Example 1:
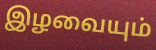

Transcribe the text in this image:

இழவையும்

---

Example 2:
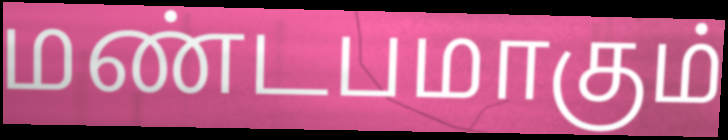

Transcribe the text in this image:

மண்டபமாகும்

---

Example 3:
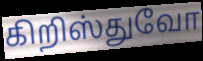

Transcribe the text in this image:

கிறிஸ்துவோ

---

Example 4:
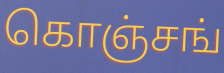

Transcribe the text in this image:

கொஞ்சங்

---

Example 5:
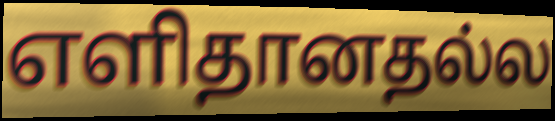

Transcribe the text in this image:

எளிதானதல்ல